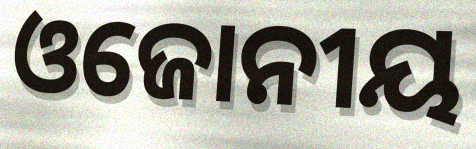
ଓଜୋନୀୟ